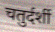
चतुर्दर्शी